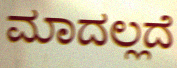
ಮಾದಲ್ಲದೆ